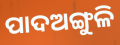
ପାଦଅଙ୍ଗୁଳି